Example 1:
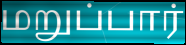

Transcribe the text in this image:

மறுப்பார்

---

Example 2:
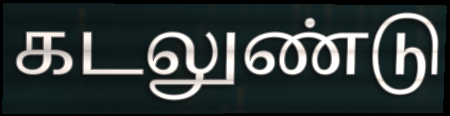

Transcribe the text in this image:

கடலுண்டு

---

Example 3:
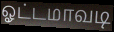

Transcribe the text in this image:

ஓட்டமாவடி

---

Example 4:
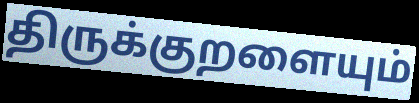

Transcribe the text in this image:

திருக்குறளையும்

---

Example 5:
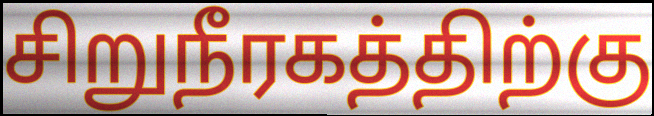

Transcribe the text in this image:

சிறுநீரகத்திற்கு